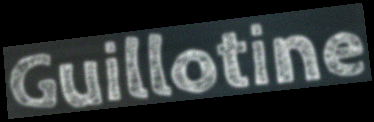
Guillotine